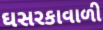
ઘસરકાવાળી